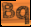
Bq